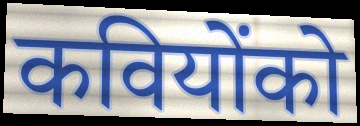
कवियोंको